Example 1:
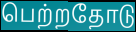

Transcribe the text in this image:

பெற்றதோடு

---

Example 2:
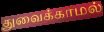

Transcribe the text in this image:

துவைக்காமல்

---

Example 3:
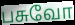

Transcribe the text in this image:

பசுவோ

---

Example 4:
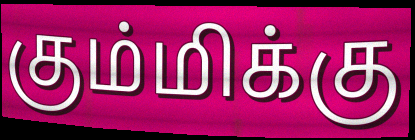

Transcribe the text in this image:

கும்மிக்கு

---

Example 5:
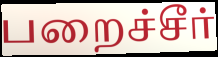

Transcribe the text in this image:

பறைச்சீர்